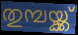
തുമ്പയ്ക്ക്